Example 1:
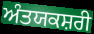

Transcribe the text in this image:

ਅੰਤਯਕਸ਼ਰੀ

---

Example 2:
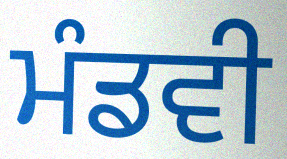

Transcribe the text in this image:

ਮੰਡਵੀ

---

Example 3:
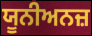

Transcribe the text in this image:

ਯੂਨੀਅਨਜ਼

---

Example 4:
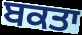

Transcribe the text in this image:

ਬਕਤਾ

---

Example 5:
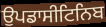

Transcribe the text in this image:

ਉਪਡਾਸੀਟਿਨਿਬ